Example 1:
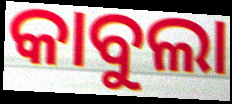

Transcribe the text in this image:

କାବୁଲା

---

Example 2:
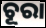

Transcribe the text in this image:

ଚୂରା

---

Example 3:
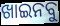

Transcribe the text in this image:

ଖାଇନବୁ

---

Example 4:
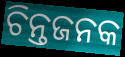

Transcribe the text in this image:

ଚିନ୍ତଜନକ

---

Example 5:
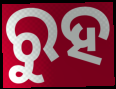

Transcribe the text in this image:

ରୁହ